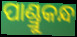
ପାଣ୍ଡ୍ରୁକନ୍ଧ